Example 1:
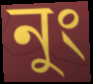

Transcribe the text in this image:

নুং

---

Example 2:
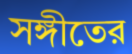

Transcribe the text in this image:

সঙ্গীতের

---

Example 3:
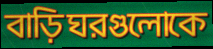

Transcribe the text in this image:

বাড়িঘরগুলোকে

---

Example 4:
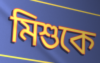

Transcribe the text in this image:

মিশুকে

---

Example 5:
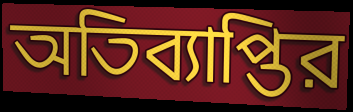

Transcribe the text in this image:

অতিব্যাপ্তির